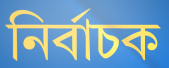
নির্বাচক